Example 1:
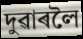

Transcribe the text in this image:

দুৱাৰলৈ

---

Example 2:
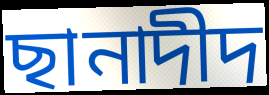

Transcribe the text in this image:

ছানাদীদ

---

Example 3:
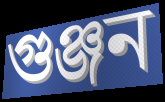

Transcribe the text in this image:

গুঞ্জন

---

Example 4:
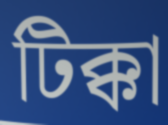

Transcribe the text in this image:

টিক্কা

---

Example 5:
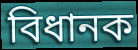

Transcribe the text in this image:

বিধানক